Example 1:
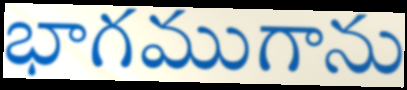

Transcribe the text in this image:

భాగముగాను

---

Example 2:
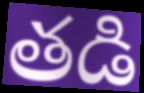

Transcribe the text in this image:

తడి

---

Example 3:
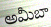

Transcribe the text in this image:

అమీబా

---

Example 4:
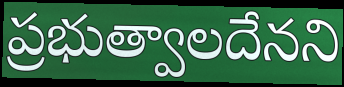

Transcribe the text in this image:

ప్రభుత్వాలదేనని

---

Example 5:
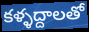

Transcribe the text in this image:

కళ్ళద్దాలతో